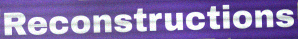
Reconstructions